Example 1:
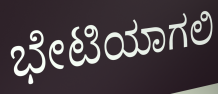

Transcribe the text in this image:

ಭೇಟಿಯಾಗಲಿ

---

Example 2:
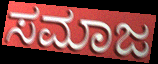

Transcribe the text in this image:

ಸಮಾಜ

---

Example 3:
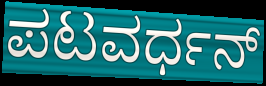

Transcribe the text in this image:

ಪಟವರ್ಧನ್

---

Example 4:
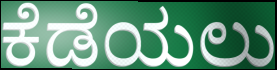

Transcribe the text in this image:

ಕೆಡೆಯಲು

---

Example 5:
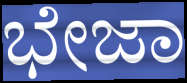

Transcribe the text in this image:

ಭೇಜಾ